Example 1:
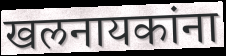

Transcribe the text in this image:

खलनायकांना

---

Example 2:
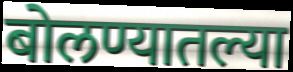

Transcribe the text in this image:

बोलण्यातल्या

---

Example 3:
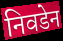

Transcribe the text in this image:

निवडेन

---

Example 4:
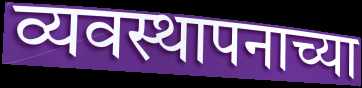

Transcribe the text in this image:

व्यवस्थापनाच्या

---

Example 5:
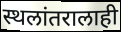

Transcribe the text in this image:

स्थलांतरालाही